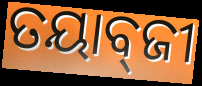
ତୟାବ୍‌ଜୀ